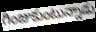
గింజుకుంటున్నాడు